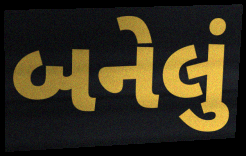
બનેલું